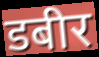
डबीर